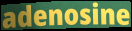
adenosine